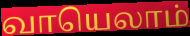
வாயெலாம்